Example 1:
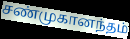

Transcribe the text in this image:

சண்முகானந்தம்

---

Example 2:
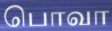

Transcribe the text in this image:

பொவா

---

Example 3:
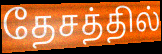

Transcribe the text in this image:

தேசத்தில்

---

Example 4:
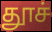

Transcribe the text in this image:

தூச்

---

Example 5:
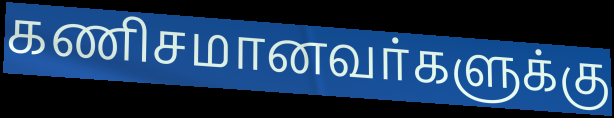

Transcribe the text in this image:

கணிசமானவர்களுக்கு